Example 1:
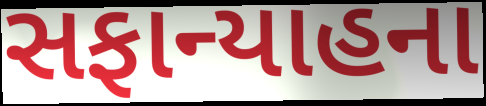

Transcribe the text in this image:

સફાન્યાહના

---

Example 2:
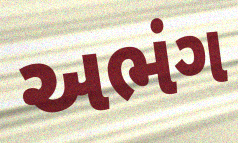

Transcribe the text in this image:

અભંગ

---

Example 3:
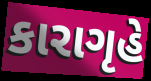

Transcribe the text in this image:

કારાગૃહે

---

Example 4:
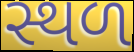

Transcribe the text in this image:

સ્થળ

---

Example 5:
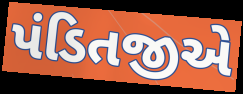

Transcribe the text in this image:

પંડિતજીએ